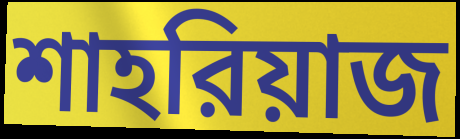
শাহরিয়াজ